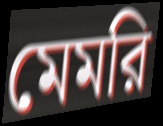
মেমরি